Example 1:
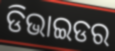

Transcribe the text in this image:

ଡିଭାଇଡର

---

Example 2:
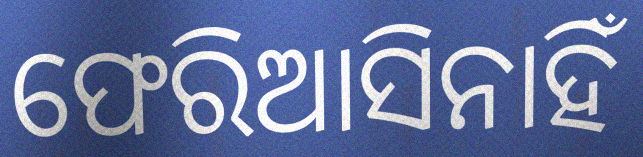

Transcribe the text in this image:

ଫେରିଆସିନାହିଁ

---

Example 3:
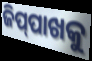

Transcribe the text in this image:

ଜିପ୍‌ପାଖକୁ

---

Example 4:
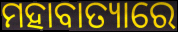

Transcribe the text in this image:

ମହାବାତ୍ୟାରେ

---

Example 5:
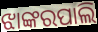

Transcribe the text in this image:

ଝାଙ୍କରପାଲି